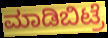
ಮಾಡಿಬಿಟ್ರೆ